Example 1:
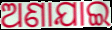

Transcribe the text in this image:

ଅଣାଯାଇ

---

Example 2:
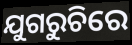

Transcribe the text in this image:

ଯୁଗରୁଚିରେ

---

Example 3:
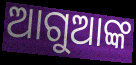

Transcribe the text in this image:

ଆଗୁଆଙ୍କ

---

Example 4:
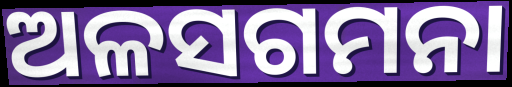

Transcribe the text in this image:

ଅଳସଗମନା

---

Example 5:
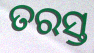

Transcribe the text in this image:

ତରସ୍ତ